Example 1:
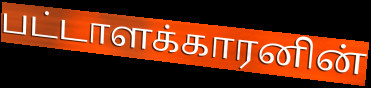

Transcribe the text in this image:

பட்டாளக்காரனின்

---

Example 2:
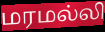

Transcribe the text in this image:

மரமல்லி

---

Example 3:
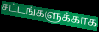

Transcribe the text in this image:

சட்டங்களுக்காக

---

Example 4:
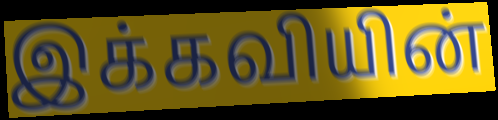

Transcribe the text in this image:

இக்கவியின்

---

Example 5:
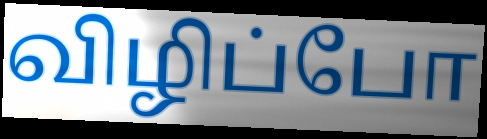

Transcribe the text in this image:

விழிப்போ